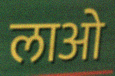
लाओ